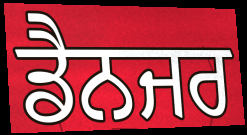
ਡੈਨਜਰ